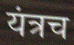
यंत्रच